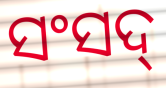
ସଂସଦ୍